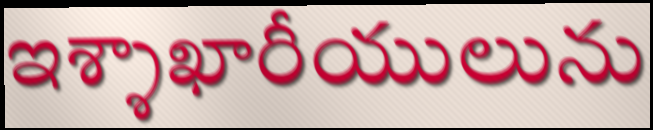
ఇశ్శాఖారీయులును